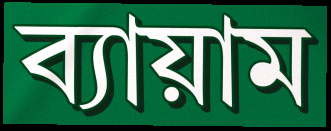
ব্যায়াম